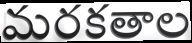
మరకతాల